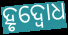
ହୃଦ୍ବୋଧ